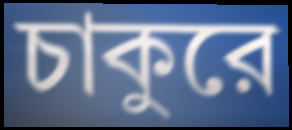
চাকুরে